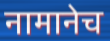
नामानेच